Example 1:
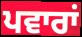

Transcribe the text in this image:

ਪਵਾਰਾਂ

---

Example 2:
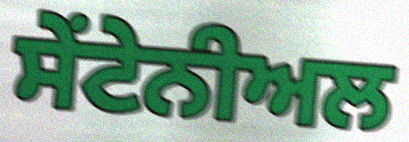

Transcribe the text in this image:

ਸੇਂਟੇਨੀਅਲ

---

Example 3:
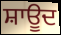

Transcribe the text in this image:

ਸ਼ਾਊਦ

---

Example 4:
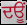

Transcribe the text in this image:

ਦਊਂ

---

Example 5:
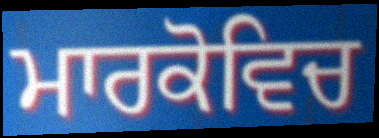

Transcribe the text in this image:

ਮਾਰਕੋਵਿਚ